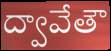
ద్వావేతౌ